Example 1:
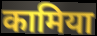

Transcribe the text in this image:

कामिया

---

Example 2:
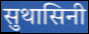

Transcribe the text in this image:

सुथासिनी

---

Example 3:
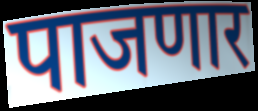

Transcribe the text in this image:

पाजणार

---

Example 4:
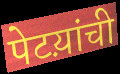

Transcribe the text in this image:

पेटय़ांची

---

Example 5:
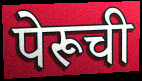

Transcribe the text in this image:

पेरूची